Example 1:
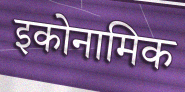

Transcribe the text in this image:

इकोनामिक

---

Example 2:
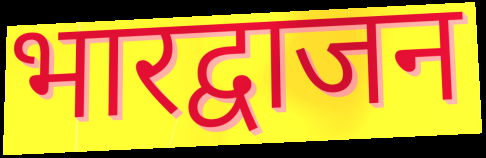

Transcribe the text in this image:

भारद्वाजन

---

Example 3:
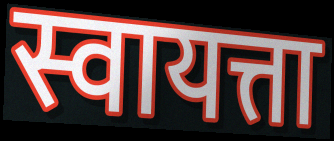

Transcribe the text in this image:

स्वायत्ता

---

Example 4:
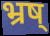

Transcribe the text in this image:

भ्रष्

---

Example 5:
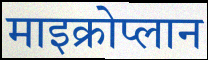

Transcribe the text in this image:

माइक्रोप्लान